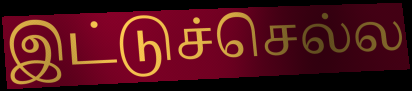
இட்டுச்செல்ல